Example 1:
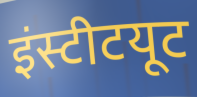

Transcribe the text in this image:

इंस्टीटयूट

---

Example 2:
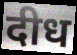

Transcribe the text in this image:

दीध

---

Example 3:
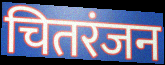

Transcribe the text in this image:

चितरंजन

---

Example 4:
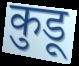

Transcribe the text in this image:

कुडू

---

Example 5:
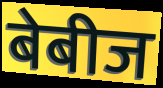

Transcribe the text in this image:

बेबीज